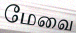
மேவை